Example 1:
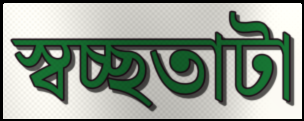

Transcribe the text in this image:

স্বচ্ছতাটা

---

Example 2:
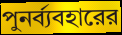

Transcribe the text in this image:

পুনর্ব্যবহারের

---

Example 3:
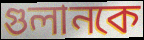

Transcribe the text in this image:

গুলানকে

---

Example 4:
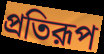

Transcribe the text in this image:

প্রতিরূপ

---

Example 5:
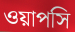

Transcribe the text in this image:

ওয়াপসি